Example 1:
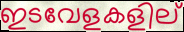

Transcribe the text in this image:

ഇടവേളകളില്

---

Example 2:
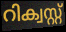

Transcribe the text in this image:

റിക്വസ്റ്റ്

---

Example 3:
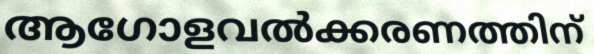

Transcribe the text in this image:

ആഗോളവൽക്കരണത്തിന്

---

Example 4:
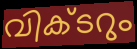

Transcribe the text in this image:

വിക്ടറും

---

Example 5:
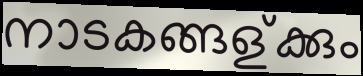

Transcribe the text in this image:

നാടകങ്ങള്ക്കും